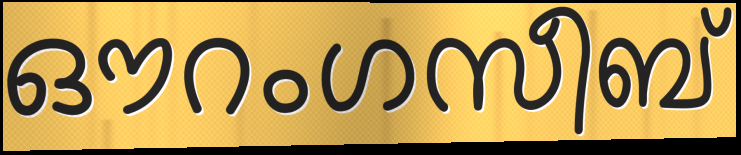
ഔറംഗസീബ്